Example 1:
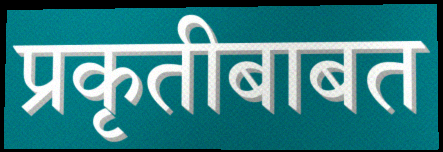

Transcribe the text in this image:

प्रकृतीबाबत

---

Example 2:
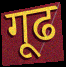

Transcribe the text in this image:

गूढ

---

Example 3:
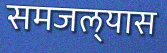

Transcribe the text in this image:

समजल्यास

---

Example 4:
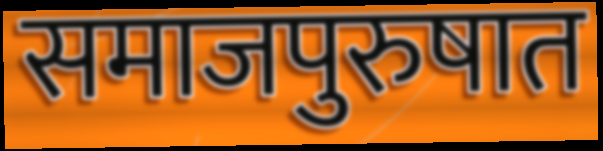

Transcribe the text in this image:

समाजपुरुषात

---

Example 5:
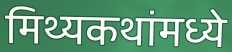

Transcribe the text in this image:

मिथ्यकथांमध्ये